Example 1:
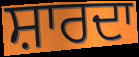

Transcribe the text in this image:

ਸ਼ਾਰਦਾ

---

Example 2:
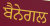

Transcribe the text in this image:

ਬੈਨੇਗਲ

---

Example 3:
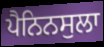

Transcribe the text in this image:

ਪੈਨਿਨਸੁਲਾ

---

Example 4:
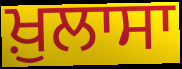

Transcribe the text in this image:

ਖ਼ੁਲਾਸਾ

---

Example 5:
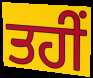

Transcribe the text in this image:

ਤਹੀਂ